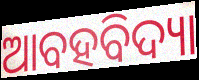
ଆବହବିଦ୍ୟା